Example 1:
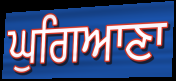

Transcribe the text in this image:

ਘੁਗਿਆਣਾ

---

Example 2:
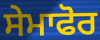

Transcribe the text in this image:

ਸੇਮਾਫੋਰ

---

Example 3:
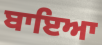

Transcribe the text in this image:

ਬਾਇਆ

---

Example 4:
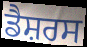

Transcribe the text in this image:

ਡੈਸ਼ਰਸ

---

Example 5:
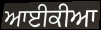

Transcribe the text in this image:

ਆਈਕੀਆ